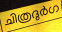
ചിത്രദുർഗ